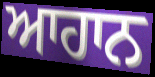
ਆਹਾਨ